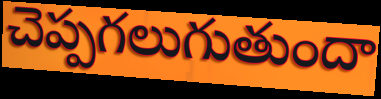
చెప్పగలుగుతుందా